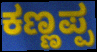
ಕಣ್ಣಪ್ಪ